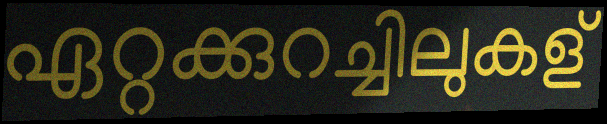
ഏറ്റക്കുറച്ചിലുകള്